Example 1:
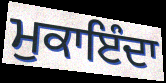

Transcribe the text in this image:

ਮੁਕਾਇੰਦਾ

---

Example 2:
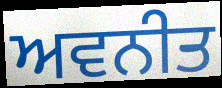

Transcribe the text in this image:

ਅਵਨੀਤ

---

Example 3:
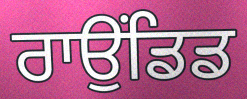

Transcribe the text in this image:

ਰਾਉਂਡਿਡ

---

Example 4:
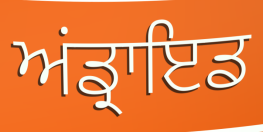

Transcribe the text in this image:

ਅਂਡ੍ਰਾਇਡ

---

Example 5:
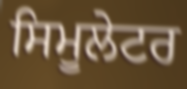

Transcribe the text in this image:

ਸਿਮੂਲੇਟਰ